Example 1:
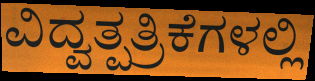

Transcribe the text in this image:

ವಿದ್ವತ್ಪತ್ರಿಕೆಗಳಲ್ಲಿ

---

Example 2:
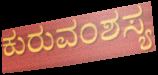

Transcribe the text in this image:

ಕುರುವಂಶಸ್ಯ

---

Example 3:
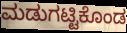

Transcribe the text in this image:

ಮಡುಗಟ್ಟಿಕೊಂಡ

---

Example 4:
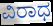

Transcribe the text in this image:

ವಿರಾಧ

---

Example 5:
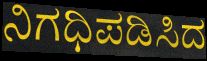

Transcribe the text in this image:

ನಿಗಧಿಪಡಿಸಿದ